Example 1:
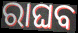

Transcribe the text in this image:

ରାଘବ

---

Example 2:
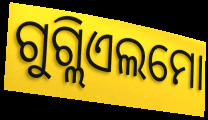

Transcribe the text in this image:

ଗୁଗ୍ଲିଏଲମୋ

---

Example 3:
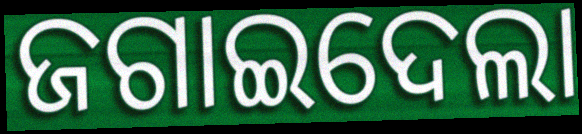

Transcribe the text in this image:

ଜଗାଇଦେଲା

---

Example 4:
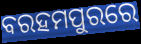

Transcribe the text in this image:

ବରହମପୁରରେ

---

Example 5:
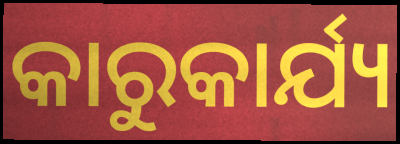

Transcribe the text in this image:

କାରୁକାର୍ଯ୍ୟ